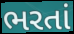
ભરતાં